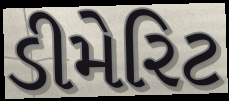
ડીમેરિટ